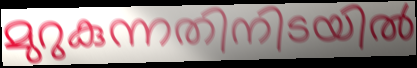
മുറുകുന്നതിനിടയിൽ